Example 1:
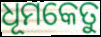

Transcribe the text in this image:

ଧୂମକେତୁ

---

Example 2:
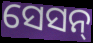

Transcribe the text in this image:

ସେସନ୍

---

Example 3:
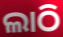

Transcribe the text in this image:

ଲାଠି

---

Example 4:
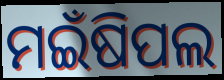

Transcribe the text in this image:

ମଇଁଷିପଲ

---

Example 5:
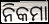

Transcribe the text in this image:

ନିକମା